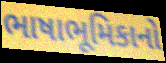
ભાષાભૂમિકાનો